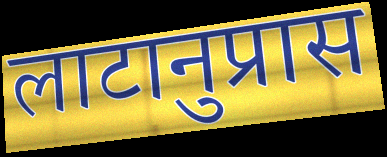
लाटानुप्रास